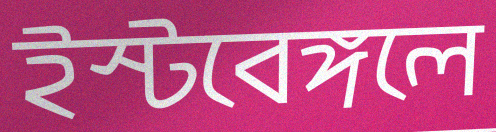
ইস্টবেঙ্গলে